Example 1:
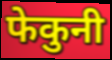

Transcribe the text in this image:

फेकुनी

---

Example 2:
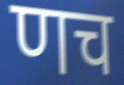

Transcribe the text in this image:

णच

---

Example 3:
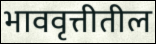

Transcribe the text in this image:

भाववृत्तीतील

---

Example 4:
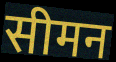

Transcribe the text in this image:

सीमन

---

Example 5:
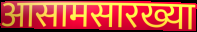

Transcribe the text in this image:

आसामसारख्या